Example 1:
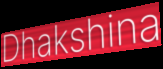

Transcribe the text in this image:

Dhakshina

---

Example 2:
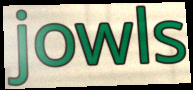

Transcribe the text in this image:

jowls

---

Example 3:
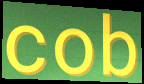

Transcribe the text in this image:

cob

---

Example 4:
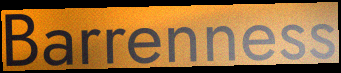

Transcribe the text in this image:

Barrenness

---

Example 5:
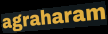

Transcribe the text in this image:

agraharam